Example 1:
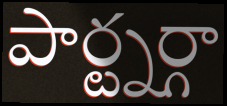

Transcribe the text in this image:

పార్ట్నర్గా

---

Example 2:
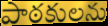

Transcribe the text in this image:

పాఠకులను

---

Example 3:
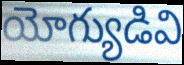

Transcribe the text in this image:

యోగ్యుడివి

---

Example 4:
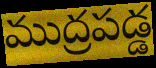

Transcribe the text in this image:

ముద్రపడ్డ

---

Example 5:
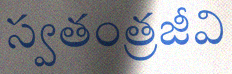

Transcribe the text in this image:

స్వతంత్రజీవి